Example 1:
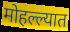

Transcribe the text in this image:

मोहल्ल्यात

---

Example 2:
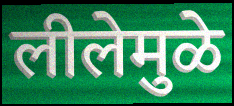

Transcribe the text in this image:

लीलेमुळे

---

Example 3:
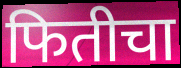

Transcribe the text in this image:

फितीचा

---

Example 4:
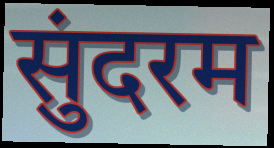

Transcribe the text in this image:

सुंदरम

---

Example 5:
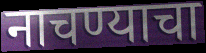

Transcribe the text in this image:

नाचण्याचा